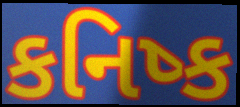
કનિષ્ક